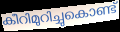
കീറിമുറിച്ചുകൊണ്ട്